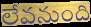
లేవనుంది